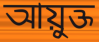
আয়ুক্ত